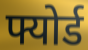
फ्योर्ड